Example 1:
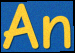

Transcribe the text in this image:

An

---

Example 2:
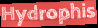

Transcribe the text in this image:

Hydrophis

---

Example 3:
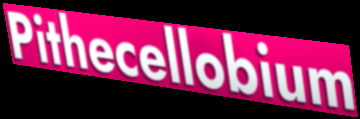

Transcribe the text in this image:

Pithecellobium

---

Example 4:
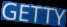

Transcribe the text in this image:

GETTY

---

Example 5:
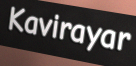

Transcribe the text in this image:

Kavirayar